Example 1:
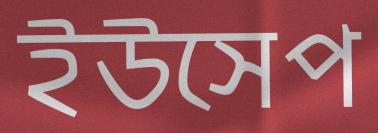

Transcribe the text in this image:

ইউসেপ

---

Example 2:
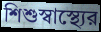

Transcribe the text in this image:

শিশুস্বাস্থ্যের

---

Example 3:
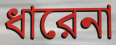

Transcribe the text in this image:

ধারেনা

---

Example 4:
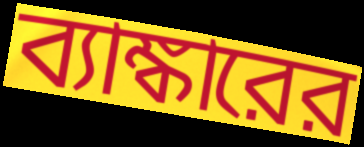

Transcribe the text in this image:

ব্যাঙ্কারের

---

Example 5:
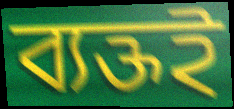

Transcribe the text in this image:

ব্যক্তই